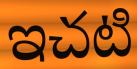
ఇచటి